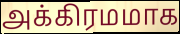
அக்கிரமமாக